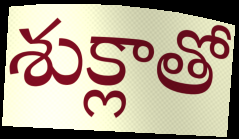
శుక్లాతో